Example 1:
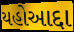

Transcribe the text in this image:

યહોઆદ્દા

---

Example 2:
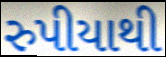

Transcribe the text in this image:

રુપીયાથી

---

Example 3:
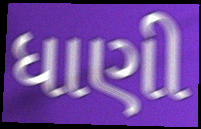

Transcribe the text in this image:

ધાણી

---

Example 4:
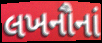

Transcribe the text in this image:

લખનૌનાં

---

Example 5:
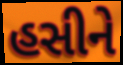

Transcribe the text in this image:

હસીને